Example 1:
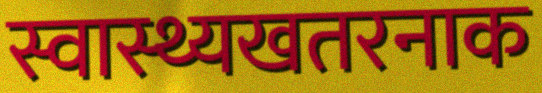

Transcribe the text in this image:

स्वास्थ्यखतरनाक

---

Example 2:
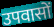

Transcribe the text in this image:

उपवासों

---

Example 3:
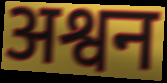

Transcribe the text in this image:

अश्वन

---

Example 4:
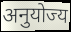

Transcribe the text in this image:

अनुयोज्य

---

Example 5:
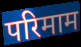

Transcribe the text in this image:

परिमाम